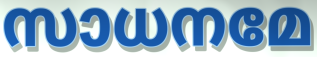
സാധനമേ